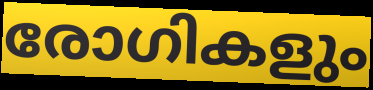
രോഗികളും